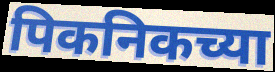
पिकनिकच्या